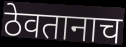
ठेवतानाच